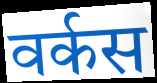
वर्कस